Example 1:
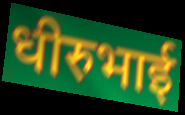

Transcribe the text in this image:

धीरुभाई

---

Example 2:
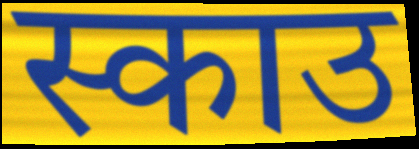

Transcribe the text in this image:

स्काउ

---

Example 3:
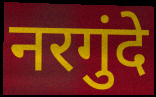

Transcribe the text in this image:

नरगुंदे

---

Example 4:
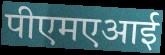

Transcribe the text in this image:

पीएमएआई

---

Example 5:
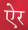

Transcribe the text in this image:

ऐर